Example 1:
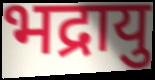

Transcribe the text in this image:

भद्रायु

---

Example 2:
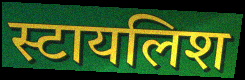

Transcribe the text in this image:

स्टायलिश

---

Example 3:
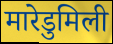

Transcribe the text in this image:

मारेडुमिली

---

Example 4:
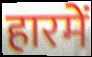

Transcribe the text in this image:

हारमें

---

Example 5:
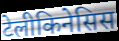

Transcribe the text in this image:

टेलीकिनेसिस